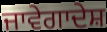
ਜਾਵੇਗਾਦੇਸ਼